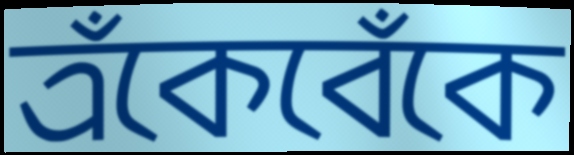
ত্রঁকেবেঁকে